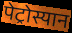
पेट्रोस्यान